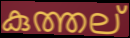
കുത്തല്